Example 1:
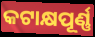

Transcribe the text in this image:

କଟାକ୍ଷପୂର୍ଣ୍ଣ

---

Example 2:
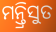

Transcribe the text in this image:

ମନ୍ତ୍ରିସୁତ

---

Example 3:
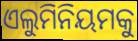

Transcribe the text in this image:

ଏଲୁମିନିୟମକୁ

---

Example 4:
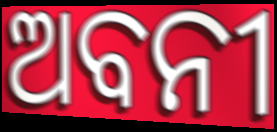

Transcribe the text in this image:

ଅବନୀ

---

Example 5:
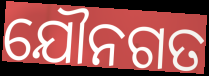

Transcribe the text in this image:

ଯୌନଗତ